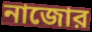
নাজোর